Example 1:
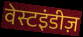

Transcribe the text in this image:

वेस्टइंडीज़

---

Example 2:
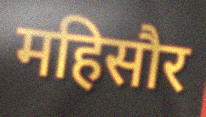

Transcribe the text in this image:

महिसौर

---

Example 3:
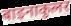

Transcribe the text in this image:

बाइनाकुलर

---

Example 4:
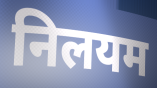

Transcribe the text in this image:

निलयम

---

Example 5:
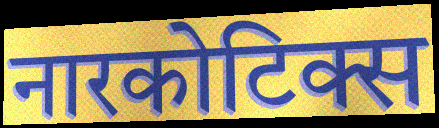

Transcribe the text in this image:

नारकोटिक्स